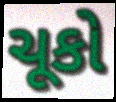
ચૂકો